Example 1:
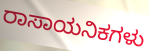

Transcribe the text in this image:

ರಾಸಾಯನಿಕಗಳು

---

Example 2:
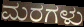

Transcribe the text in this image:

ಮರಗಳು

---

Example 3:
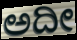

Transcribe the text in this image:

ಅದೀ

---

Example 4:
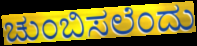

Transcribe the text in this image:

ಚುಂಬಿಸಲೆಂದು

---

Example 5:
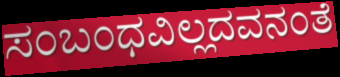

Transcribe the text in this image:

ಸಂಬಂಧವಿಲ್ಲದವನಂತೆ